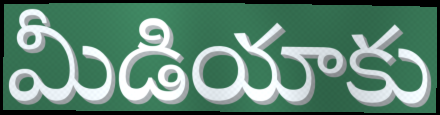
మీడియాకు